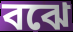
বঝে